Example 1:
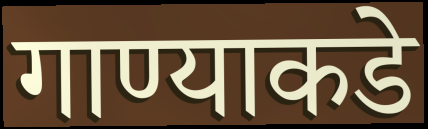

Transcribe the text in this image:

गाण्याकडे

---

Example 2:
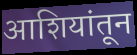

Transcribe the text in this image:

आशियांतून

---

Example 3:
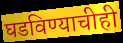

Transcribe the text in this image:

घडविण्याचीही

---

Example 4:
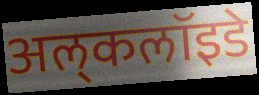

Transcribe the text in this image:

अल्कलॉइडे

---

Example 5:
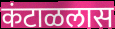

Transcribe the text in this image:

कंटाळलास